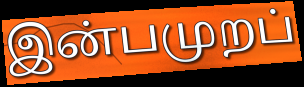
இன்பமுறப்